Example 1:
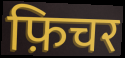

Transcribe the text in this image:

फ़िचर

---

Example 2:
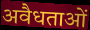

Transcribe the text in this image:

अवैधताओं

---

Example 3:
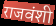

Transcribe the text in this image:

राजवंशी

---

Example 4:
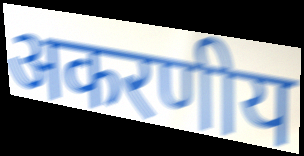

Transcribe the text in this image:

अकरणीय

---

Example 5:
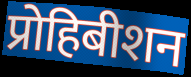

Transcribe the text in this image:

प्रोहिबीशन